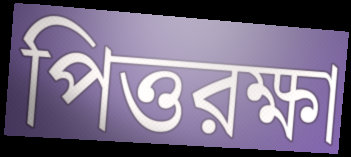
পিত্তরক্ষা